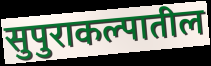
सुपुराकल्पातील